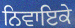
ਨਿਵਾਇਕੇ